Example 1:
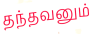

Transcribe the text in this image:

தந்தவனும்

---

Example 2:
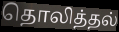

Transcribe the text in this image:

தொலித்தல்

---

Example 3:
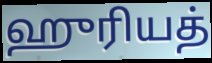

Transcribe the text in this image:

ஹுரியத்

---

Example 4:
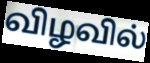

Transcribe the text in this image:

விழவில்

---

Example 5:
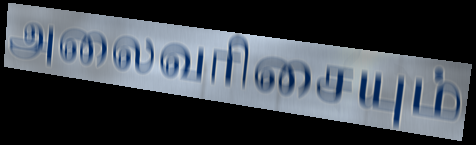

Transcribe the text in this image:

அலைவரிசையும்